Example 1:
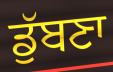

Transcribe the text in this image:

ਡੁੱਬਣਾ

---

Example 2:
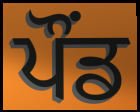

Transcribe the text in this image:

ਪੌਂਡ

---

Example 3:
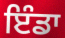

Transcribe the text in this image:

ਇੰਡਾ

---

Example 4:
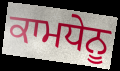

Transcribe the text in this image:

ਕਾਮਧੇਨੂ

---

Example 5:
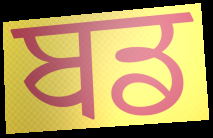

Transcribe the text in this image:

ਬਡ